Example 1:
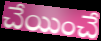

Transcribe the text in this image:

చేయించే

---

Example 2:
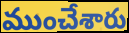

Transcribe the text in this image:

ముంచేశారు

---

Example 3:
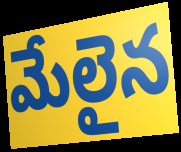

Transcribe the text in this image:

మేలైన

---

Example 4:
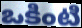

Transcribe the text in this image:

ఒకింటి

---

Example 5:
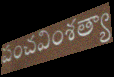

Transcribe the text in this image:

పంచవింశత్యా